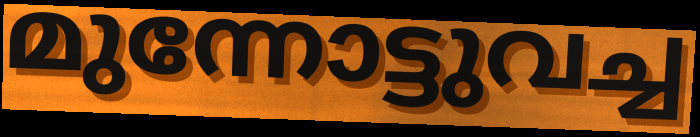
മുന്നോട്ടുവച്ച